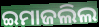
ଇମାଜଲିଲ